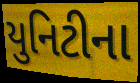
યુનિટીના